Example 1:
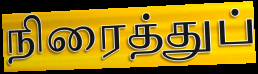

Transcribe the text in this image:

நிரைத்துப்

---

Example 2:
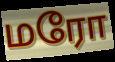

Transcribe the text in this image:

மரோ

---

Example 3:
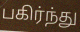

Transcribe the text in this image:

பகிர்ந்து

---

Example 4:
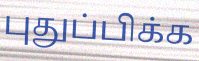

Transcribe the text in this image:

புதுப்பிக்க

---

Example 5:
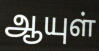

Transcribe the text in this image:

ஆயுள்